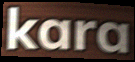
kara